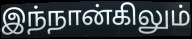
இந்நான்கிலும்